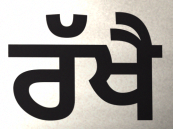
ਰੱਖੈ